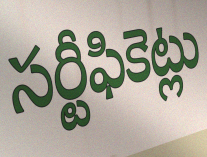
సర్టీఫికెట్లు